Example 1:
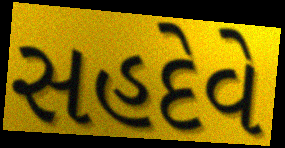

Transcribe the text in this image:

સહદેવે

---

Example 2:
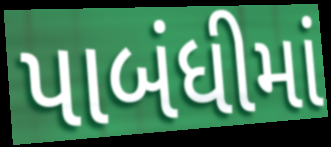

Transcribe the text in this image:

પાબંધીમાં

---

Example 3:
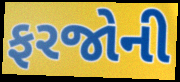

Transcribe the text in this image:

ફરજોની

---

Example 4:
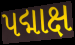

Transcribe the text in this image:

પદ્માક્ષ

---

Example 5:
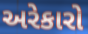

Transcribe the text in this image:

અરેકારો